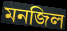
মনজিল